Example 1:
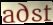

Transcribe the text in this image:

adst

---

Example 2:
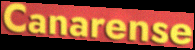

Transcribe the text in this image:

Canarense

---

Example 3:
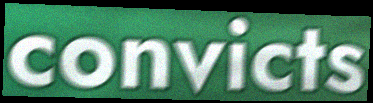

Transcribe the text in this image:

convicts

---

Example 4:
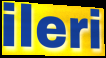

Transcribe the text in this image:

ileri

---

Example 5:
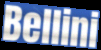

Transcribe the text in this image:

Bellini